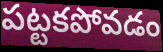
పట్టకపోవడం